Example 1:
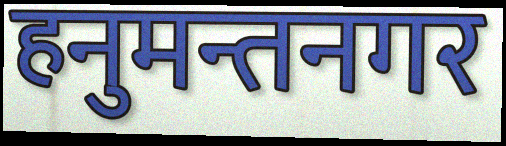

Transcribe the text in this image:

हनुमन्तनगर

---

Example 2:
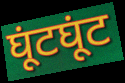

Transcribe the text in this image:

घूंटघूंट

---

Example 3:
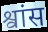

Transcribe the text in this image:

श्वांस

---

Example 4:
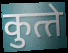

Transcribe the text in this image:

कुत्‍ते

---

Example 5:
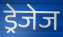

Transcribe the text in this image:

ड्रेजेज